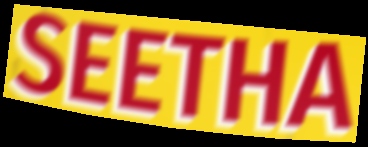
SEETHA